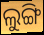
ଲୁଙ୍ଗି